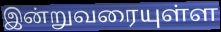
இன்றுவரையுள்ள